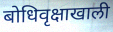
बोधिवृक्षाखाली